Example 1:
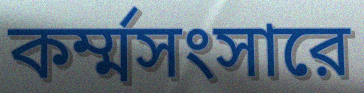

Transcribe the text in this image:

কর্ম্মসংসারে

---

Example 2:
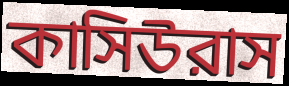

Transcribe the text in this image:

কাসিউরাস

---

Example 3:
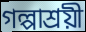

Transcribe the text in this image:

গল্পাশ্রয়ী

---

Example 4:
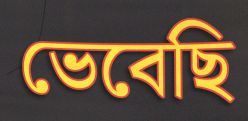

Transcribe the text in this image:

ভেবেছি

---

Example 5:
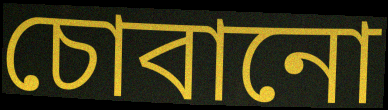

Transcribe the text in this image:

চোবানো